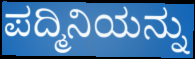
ಪದ್ಮಿನಿಯನ್ನು